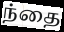
ந்தை